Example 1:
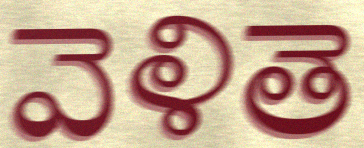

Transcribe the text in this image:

వెళితె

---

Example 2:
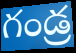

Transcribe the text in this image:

గండ్ర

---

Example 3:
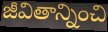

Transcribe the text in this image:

జీవితాన్నించి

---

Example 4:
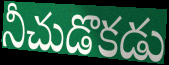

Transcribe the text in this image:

నీచుడొకడు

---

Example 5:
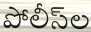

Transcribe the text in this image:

పోలీస్‌ల